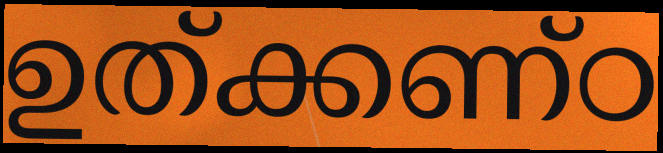
ഉത്ക്കണ്ഠ